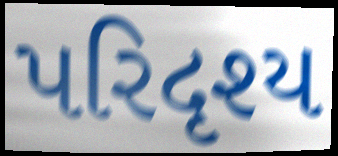
પરિદૃશ્ય